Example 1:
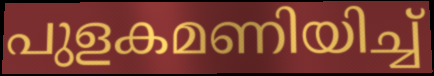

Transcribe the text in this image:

പുളകമണിയിച്ച്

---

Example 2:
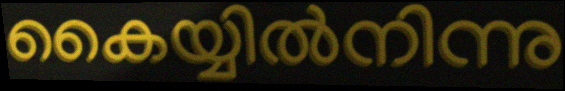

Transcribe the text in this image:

കൈയ്യിൽനിന്നു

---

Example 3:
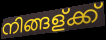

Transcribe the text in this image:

നിങ്ങള്ക്ക്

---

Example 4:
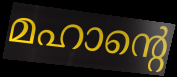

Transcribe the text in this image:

മഹാന്റെ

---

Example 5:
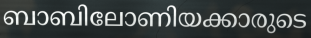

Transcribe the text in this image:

ബാബിലോണിയക്കാരുടെ